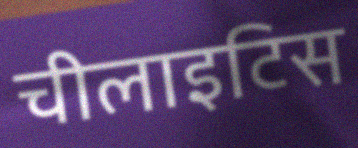
चीलाइटिस